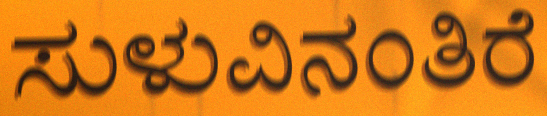
ಸುಳುವಿನಂತಿರೆ